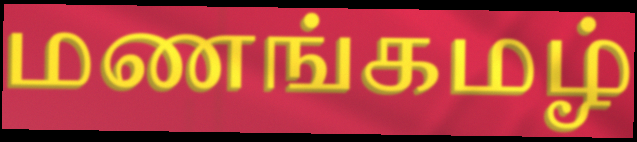
மணங்கமழ்